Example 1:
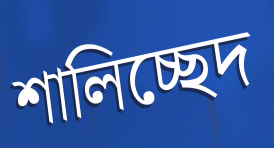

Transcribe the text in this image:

শালিচ্ছেদ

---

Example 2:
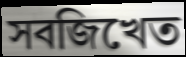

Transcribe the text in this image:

সবজিখেত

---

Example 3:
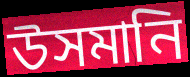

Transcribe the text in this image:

উসমানি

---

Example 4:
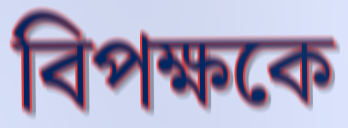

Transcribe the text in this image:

বিপক্ষকে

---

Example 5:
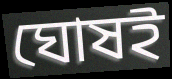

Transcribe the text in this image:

ঘোষই